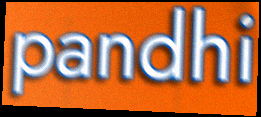
pandhi